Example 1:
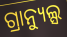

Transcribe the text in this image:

ଗ୍ରାନ୍ୟୁଲ୍ସ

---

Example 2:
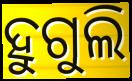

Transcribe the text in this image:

ହୁଗୁଲି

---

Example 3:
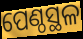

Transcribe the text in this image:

ପେଣ୍ଠସ୍ଥଳ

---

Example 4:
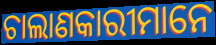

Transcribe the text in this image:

ଚାଲାଣକାରୀମାନେ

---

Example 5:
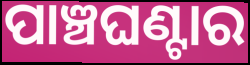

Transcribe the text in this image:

ପାଞ୍ଚଘଣ୍ଟାର